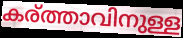
കര്ത്താവിനുള്ള